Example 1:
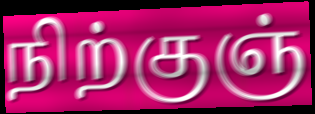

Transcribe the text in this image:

நிற்குஞ்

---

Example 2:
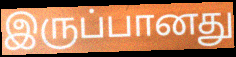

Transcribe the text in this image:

இருப்பானது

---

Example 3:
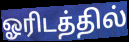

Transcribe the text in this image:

ஓரிடத்தில்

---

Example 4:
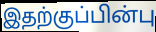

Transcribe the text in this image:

இதற்குப்பின்பு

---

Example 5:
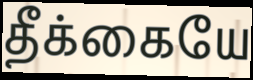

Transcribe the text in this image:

தீக்கையே